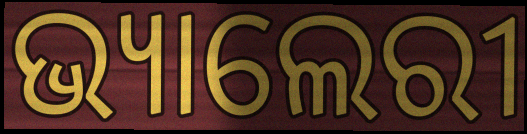
ଭ୍ୟାଲେରୀ